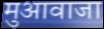
मुआवाजा